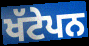
ਖੱਟੇਪਨ